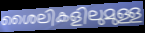
ശൈലികളിലുമുള്ള